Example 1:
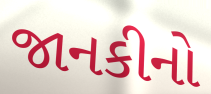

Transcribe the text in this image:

જાનકીનો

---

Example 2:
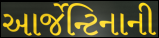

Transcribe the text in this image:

આર્જેન્ટિનાની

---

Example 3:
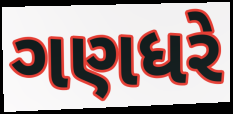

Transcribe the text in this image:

ગણધરે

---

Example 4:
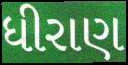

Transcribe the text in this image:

ધીરાણ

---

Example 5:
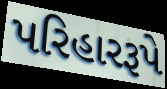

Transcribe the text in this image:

પરિહારરૂપે